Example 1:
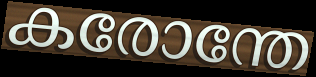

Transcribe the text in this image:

കരോന്തേ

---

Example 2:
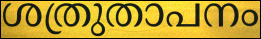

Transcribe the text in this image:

ശത്രുതാപനം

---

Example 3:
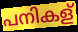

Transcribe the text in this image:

പനികള്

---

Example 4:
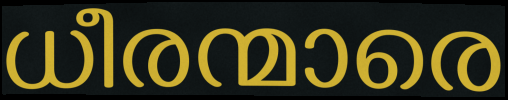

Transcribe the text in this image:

ധീരന്മാരെ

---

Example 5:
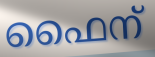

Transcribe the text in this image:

ഫൈന്